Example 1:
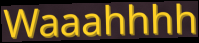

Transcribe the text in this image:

Waaahhhh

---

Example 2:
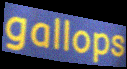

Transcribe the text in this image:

gallops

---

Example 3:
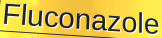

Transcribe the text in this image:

Fluconazole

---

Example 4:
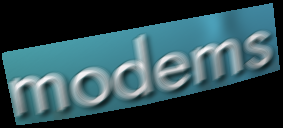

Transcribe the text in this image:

modems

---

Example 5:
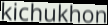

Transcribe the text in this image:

kichukhon